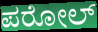
ಪರೋಲ್